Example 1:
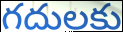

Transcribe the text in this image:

గదులకు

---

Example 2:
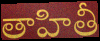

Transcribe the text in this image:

తాహితీ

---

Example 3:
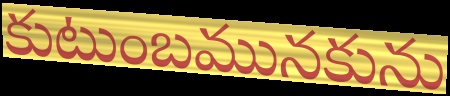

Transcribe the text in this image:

కుటుంబమునకును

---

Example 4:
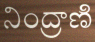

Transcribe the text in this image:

నింద్రాణి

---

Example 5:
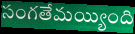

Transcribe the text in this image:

సంగతేమయ్యింది